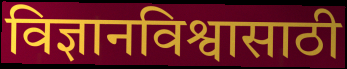
विज्ञानविश्वासाठी